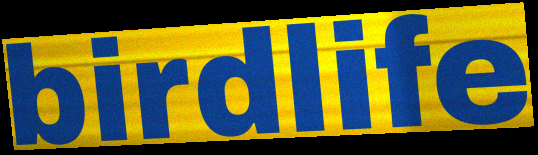
birdlife